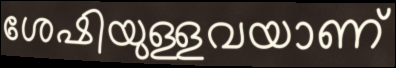
ശേഷിയുള്ളവയാണ്